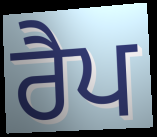
ਰੈਪ